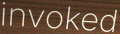
invoked